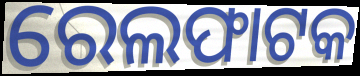
ରେଲଫାଟକ